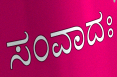
ಸಂವಾದಃ